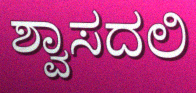
ಶ್ವಾಸದಲಿ